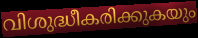
വിശുദ്ധീകരിക്കുകയും